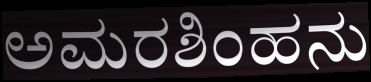
ಅಮರಶಿಂಹನು